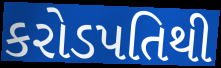
કરોડપતિથી